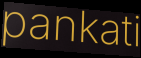
pankati